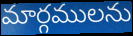
మార్గములను